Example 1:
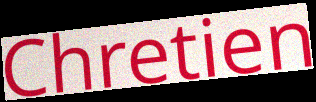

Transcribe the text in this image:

Chretien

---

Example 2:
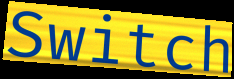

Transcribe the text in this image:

Switch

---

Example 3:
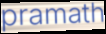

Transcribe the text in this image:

pramath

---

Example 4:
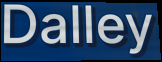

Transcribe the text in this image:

Dalley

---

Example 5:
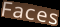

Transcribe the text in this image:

Faces